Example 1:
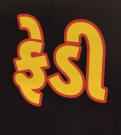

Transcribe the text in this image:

ફેડી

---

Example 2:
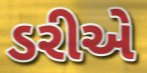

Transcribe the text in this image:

ડરીએ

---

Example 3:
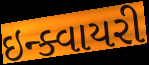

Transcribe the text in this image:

ઇન્ક્વાયરી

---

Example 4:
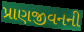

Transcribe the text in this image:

પ્રાણજીવનની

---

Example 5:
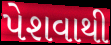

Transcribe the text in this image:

પેશવાથી